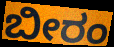
ಬೀರಂ